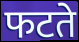
फटते